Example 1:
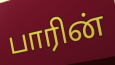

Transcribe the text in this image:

பாரின்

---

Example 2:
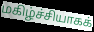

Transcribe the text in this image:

மகிழ்ச்சியாகக்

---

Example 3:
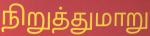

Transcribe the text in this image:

நிறுத்துமாறு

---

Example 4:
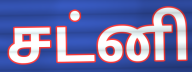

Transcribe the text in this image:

சட்னி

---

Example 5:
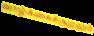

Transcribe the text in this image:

வாழ்க்கைச்சூழலும்